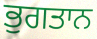
ਭੁਗਤਾਨ